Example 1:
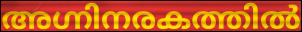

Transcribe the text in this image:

അഗ്നിനരകത്തിൽ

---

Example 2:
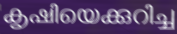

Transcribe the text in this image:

കൃഷിയെക്കുറിച്ച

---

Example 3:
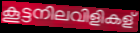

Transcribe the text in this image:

കൂട്ടനിലവിളികള്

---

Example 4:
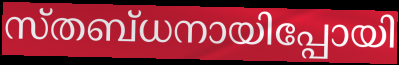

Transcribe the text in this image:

സ്തബ്ധനായിപ്പോയി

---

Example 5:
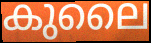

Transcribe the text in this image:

കുലൈ